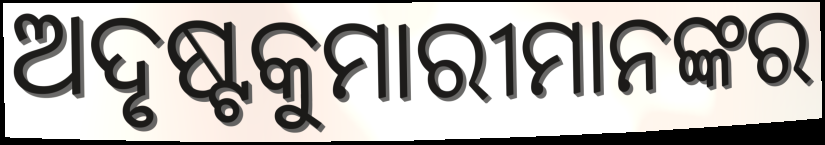
ଅଦୃଷ୍ଟକୁମାରୀମାନଙ୍କର